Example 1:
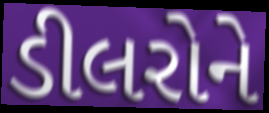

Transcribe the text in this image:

ડીલરોને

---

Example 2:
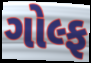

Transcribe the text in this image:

ગોલ્ફ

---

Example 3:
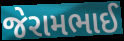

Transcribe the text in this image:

જેરામભાઈ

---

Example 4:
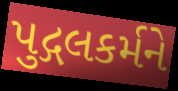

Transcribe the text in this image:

પુદ્ગલકર્મને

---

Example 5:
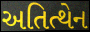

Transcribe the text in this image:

અતિત્થેન